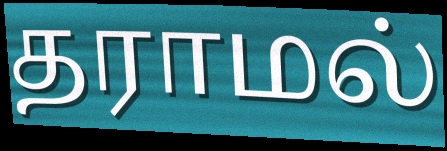
தராமல்